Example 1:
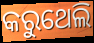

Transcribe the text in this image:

କରୁଥେଲି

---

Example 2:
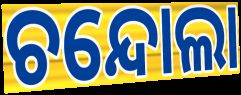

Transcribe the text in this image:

ଚନ୍ଦୋଲା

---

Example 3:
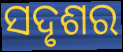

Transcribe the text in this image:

ସଦୃଶର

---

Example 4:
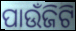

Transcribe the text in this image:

ପାଉଁଜିଟି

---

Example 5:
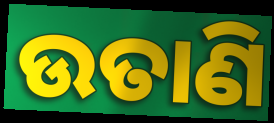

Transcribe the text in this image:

ଉତାଣି